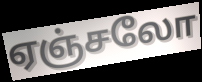
ஏஞ்சலோ